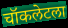
चॉकलेटला